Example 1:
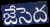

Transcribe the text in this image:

జేసెద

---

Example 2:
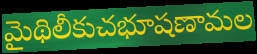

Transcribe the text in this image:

మైథిలీకుచభూషణామల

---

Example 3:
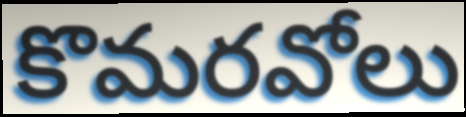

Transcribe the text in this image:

కొమరవోలు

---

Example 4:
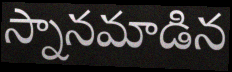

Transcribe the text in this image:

స్నానమాడిన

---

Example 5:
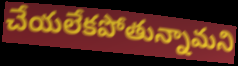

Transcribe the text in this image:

చేయలేకపోతున్నామని